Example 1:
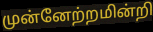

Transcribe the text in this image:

முன்னேற்றமின்றி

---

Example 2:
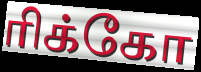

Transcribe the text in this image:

ரிக்கோ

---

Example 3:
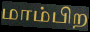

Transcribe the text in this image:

மாம்பிற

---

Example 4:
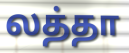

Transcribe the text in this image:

லத்தா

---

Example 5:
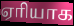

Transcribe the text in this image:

ஏரியாக